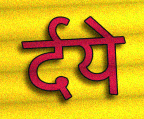
र्दये